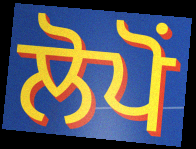
ਲੋਪੋਂ